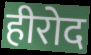
हीरोद